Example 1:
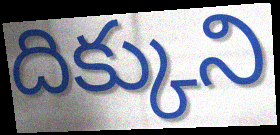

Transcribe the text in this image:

దిక్కుని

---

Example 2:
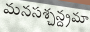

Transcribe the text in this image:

మనసశ్చన్ద్రమా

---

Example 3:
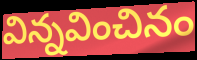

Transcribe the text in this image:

విన్నవించినం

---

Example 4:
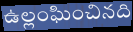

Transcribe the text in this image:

ఉల్లంఘించినది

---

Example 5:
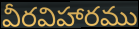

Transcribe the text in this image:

వీరవిహారము